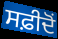
ਸਫ਼ੀਦੋਂ